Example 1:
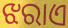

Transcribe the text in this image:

ଝରାଏ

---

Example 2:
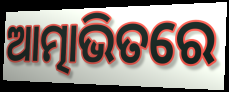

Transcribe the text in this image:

ଆତ୍ମାଭିତରେ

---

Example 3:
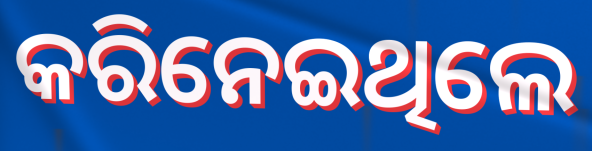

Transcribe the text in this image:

କରିନେଇଥିଲେ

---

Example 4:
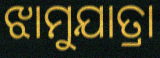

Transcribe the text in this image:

ଝାମୁଯାତ୍ରା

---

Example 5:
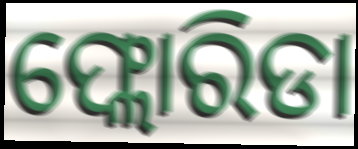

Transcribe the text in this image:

ଫ୍ଲୋରିଡା